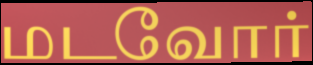
மடவோர்